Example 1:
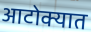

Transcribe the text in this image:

आटोक्यात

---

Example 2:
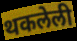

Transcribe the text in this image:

थकलेली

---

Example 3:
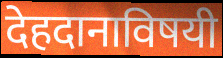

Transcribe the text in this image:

देहदानाविषयी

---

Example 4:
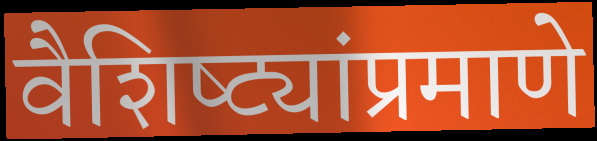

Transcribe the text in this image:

वैशिष्ट्यांप्रमाणे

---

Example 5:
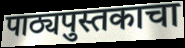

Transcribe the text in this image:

पाठ्यपुस्तकाचा